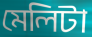
মেলিটা